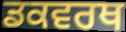
ਡਕਵਰਥ